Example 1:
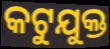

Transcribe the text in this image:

କଟୁଯୁକ୍ତ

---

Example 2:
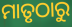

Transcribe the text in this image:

ମାତୃଠାରୁ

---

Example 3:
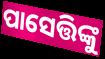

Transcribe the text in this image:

ପାସେତ୍ତିଙ୍କୁ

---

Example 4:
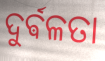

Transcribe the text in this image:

ଦୁର୍ଵଳତା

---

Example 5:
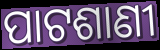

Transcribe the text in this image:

ପାଟଶାଣୀ